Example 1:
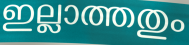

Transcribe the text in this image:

ഇല്ലാത്തതും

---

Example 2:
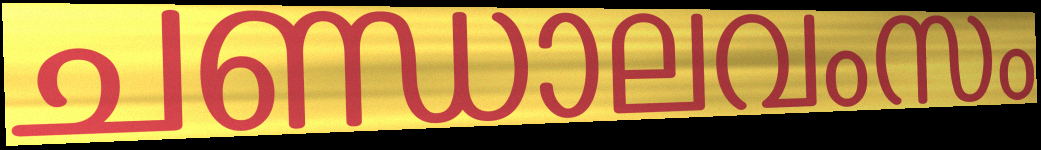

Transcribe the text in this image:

ചണ്ഡാലവംസം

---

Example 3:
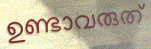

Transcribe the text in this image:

ഉണ്ടാവരുത്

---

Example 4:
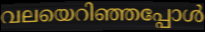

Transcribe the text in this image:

വലയെറിഞ്ഞപ്പോൾ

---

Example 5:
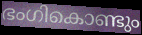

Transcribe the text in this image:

ഭംഗികൊണ്ടും